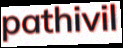
pathivil